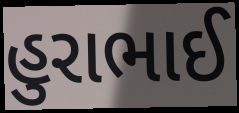
હુરાભાઈ